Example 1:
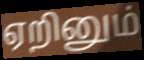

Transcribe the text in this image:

ஏறினும்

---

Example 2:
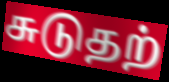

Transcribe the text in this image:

சுடுதற்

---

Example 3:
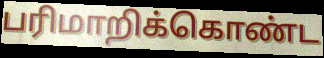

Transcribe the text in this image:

பரிமாறிக்கொண்ட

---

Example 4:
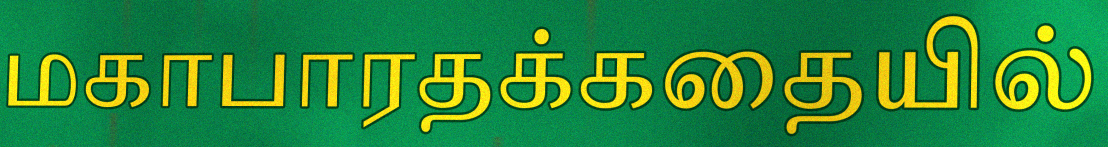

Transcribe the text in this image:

மகாபாரதக்கதையில்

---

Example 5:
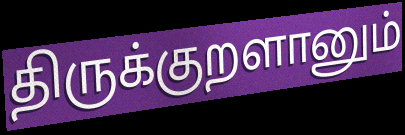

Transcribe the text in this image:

திருக்குறளானும்